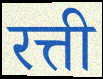
रत्ती